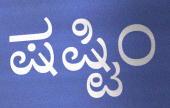
ಷಷ್ಟಿಂ